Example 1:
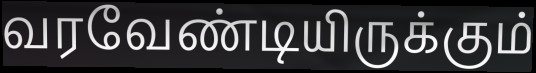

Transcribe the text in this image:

வரவேண்டியிருக்கும்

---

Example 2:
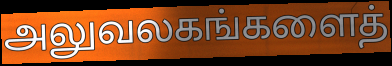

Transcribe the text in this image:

அலுவலகங்களைத்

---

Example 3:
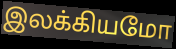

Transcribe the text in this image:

இலக்கியமோ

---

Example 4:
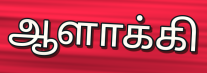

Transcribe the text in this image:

ஆளாக்கி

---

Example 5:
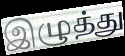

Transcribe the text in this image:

இழுத்து